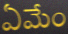
ఏమేం